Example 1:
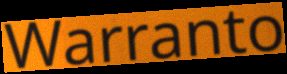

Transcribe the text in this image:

Warranto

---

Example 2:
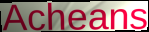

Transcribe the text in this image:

Acheans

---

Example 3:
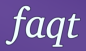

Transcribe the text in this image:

faqt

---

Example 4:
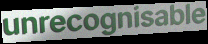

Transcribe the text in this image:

unrecognisable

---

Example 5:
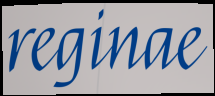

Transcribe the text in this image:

reginae